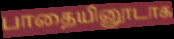
பாதையினூடாக